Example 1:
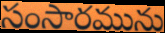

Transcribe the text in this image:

సంసారమును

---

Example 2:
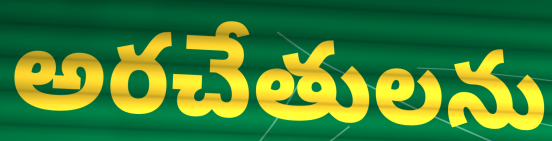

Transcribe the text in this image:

అరచేతులను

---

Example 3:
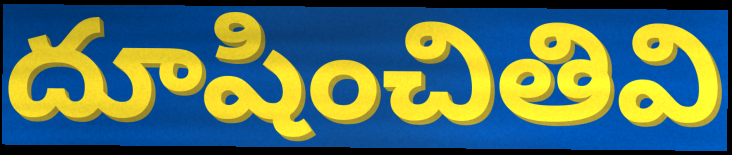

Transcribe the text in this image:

దూషించితివి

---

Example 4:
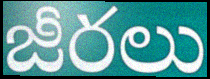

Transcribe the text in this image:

జీరలు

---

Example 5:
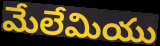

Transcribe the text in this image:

మేలేమియు